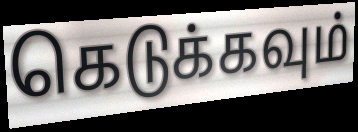
கெடுக்கவும்